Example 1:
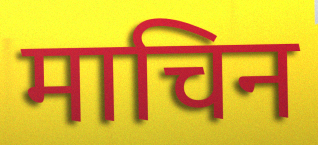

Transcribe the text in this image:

माचिन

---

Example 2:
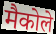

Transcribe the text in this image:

मैकोले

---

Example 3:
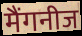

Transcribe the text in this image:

मैंगनीज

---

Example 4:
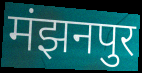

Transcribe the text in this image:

मंझनपुर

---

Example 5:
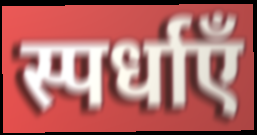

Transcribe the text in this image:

स्पर्धाएँ